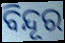
ବିନ୍ଦୂର